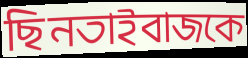
ছিনতাইবাজকে